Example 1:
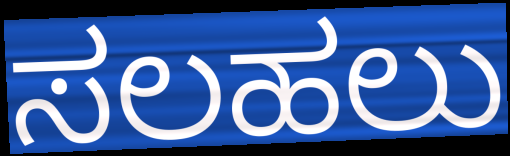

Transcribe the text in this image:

ಸಲಹಲು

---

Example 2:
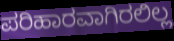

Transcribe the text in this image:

ಪರಿಹಾರವಾಗಿರಲಿಲ್ಲ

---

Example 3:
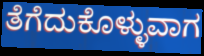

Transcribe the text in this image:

ತೆಗೆದುಕೊಳ್ಳುವಾಗ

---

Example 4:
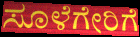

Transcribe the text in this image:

ಸೂಳೆಗೇರಿಗೆ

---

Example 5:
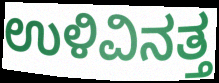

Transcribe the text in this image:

ಉಳಿವಿನತ್ತ